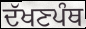
ਦੱਖਣਪੰਥ